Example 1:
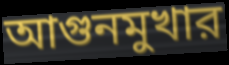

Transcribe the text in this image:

আগুনমুখার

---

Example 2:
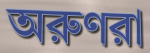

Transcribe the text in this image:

অরুণরা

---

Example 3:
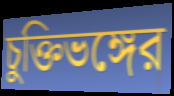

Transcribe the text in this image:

চুক্তিভঙ্গের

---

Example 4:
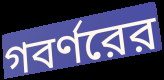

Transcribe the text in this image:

গবর্ণরের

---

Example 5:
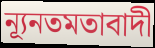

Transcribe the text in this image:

ন্যূনতমতাবাদী